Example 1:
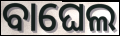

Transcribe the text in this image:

ବାଘେଲ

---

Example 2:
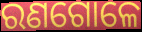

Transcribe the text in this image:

ରଣଗୋଳେ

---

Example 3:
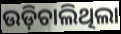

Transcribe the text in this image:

ଉଡ଼ିଚାଲିଥିଲା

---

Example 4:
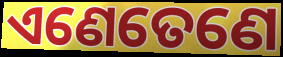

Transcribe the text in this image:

ଏଣେତେଣେ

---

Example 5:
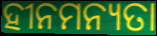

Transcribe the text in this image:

ହୀନମନ୍ୟତା